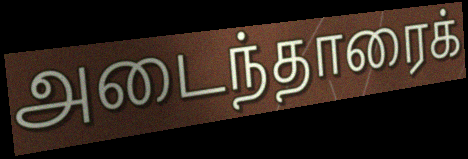
அடைந்தாரைக்